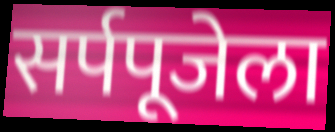
सर्पपूजेला